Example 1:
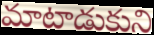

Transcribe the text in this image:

మాటాడుకుని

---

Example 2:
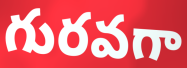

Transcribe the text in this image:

గురవగా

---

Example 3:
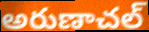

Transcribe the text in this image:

అరుణాచల్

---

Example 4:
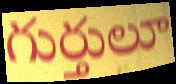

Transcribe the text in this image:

గుర్తులూ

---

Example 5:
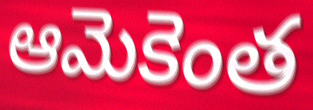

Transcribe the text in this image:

ఆమెకెంత